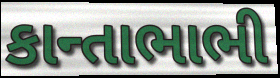
કાન્તાભાભી